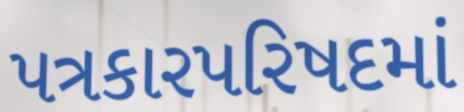
પત્રકારપરિષદમાં